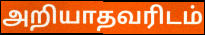
அறியாதவரிடம்